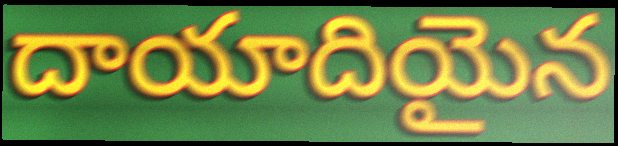
దాయాదియైన